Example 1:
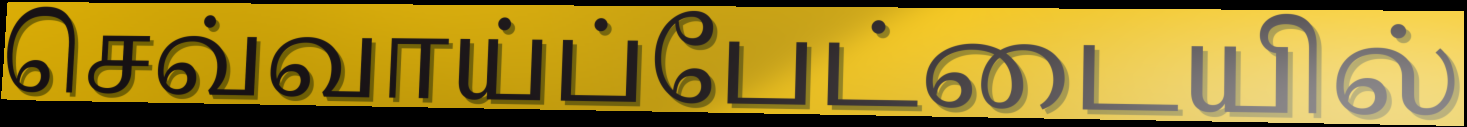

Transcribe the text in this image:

செவ்வாய்ப்பேட்டையில்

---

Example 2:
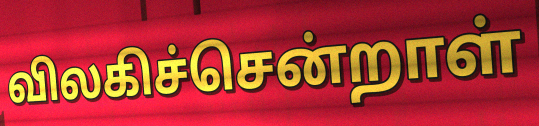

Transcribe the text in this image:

விலகிச்சென்றாள்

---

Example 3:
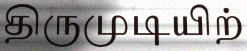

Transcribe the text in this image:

திருமுடியிற்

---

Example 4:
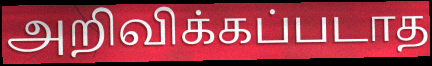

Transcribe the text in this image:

அறிவிக்கப்படாத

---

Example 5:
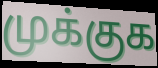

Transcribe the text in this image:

முக்குக